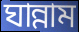
ঘান্নাম